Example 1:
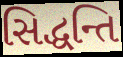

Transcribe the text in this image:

સિદ્ધન્તિ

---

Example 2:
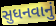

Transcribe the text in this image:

સુધનવાનું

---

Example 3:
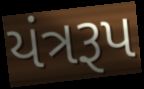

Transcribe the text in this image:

યંત્રરૂપ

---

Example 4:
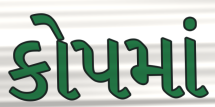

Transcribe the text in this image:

કોપમાં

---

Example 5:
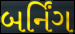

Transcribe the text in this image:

બર્નિંગ